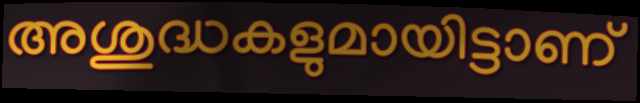
അശുദ്ധകളുമായിട്ടാണ്